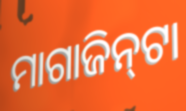
ମାଗାଜିନ୍‌ଟା